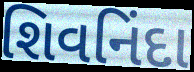
શિવનિંદા